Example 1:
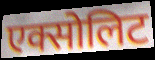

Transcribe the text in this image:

एक्सोलिट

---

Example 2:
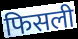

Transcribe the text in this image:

फिसली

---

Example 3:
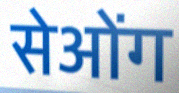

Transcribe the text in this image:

सेओंग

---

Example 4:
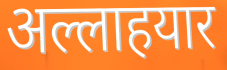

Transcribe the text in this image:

अल्लाहयार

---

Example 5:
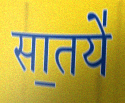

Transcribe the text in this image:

सा॒तये॑